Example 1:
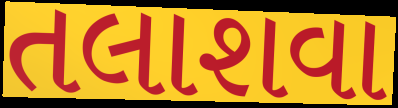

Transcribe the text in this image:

તલાશવા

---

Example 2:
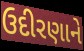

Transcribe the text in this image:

ઉદીરણાને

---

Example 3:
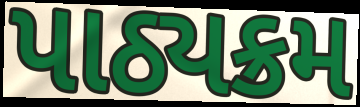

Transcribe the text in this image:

પાઠ્યક્રમ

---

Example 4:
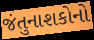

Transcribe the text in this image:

જંતુનાશકોનો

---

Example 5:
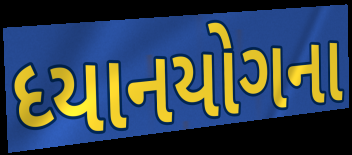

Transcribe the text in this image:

ધ્યાનયોગના